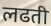
लढती